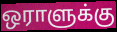
ஒராளுக்கு